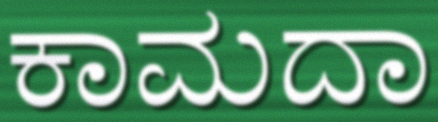
ಕಾಮದಾ